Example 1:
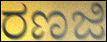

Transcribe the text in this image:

ರಣಜಿ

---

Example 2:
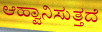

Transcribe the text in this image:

ಆಹ್ವಾನಿಸುತ್ತದೆ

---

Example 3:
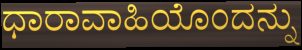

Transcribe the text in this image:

ಧಾರಾವಾಹಿಯೊಂದನ್ನು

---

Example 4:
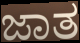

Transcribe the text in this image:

ಜಾತ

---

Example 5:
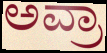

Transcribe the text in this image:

ಅವ್ರಾ